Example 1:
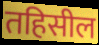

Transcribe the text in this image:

तहिसील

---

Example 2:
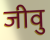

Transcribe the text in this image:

जीवु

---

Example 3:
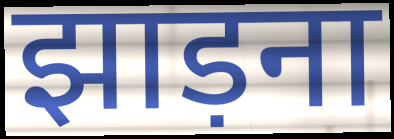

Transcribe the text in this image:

झाड़ना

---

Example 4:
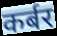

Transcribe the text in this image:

कर्बर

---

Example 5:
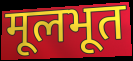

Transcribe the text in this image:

मूलभूत